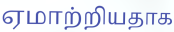
ஏமாற்றியதாக